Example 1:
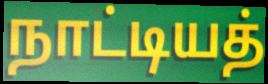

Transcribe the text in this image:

நாட்டியத்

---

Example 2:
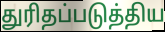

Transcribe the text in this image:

துரிதப்படுத்திய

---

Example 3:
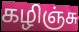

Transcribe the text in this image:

கழிஞ்சு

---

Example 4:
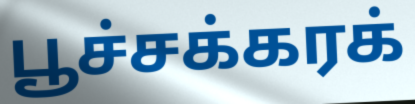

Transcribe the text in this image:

பூச்சக்கரக்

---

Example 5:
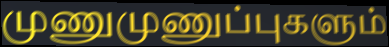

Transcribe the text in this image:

முணுமுணுப்புகளும்